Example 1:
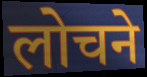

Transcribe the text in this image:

लोचने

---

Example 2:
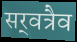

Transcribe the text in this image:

सर्वत्रैव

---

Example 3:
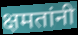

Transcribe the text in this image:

क्षमतांनी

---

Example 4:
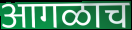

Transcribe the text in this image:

आगळाच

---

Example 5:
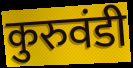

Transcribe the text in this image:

कुरुवंडी